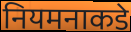
नियमनाकडे